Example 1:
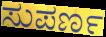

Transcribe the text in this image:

ಸುಪರ್ಣ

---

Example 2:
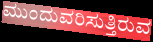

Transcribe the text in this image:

ಮುಂದುವರಿಸುತ್ತಿರುವ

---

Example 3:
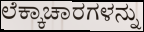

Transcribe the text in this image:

ಲೆಕ್ಕಾಚಾರಗಳನ್ನು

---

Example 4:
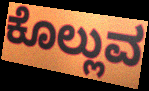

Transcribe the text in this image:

ಕೊಲ್ಲುವ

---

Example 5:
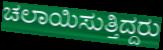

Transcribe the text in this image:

ಚಲಾಯಿಸುತ್ತಿದ್ದರು